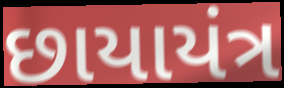
છાયાયંત્ર